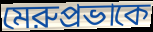
মেরুপ্রভাকে